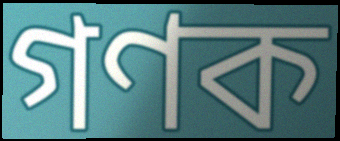
গণক